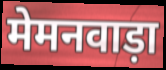
मेमनवाड़ा